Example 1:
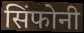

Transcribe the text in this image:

सिंफोनी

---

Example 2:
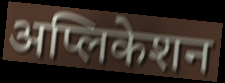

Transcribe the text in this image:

अप्लिकेशन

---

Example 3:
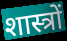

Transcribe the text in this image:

शास्त्रों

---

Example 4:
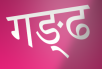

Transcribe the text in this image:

गङ्ढ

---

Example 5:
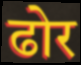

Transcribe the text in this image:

ढोर